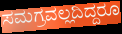
ಸಮಗ್ರವಲ್ಲದಿದ್ದರೂ